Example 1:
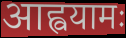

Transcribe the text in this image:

आह्वयामः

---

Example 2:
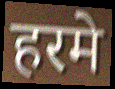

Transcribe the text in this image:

हरमे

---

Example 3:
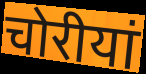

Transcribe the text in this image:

चोरीयां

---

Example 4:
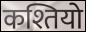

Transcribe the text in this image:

कश्तियो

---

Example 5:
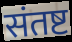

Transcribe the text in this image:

संतष्ट